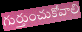
గుర్తుంచుకోవాలి